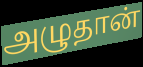
அழுதான்